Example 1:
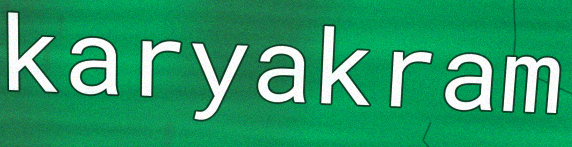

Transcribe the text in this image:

karyakram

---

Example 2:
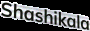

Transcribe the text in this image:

Shashikala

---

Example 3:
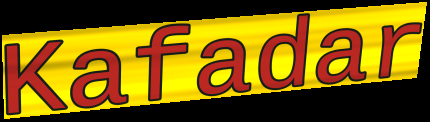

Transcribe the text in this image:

Kafadar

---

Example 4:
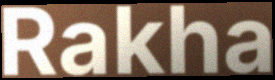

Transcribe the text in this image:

Rakha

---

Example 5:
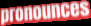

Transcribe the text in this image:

pronounces